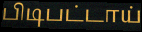
பிடிபட்டாய்